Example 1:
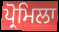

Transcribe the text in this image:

ਪ੍ਰੋਮਿਲਾ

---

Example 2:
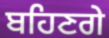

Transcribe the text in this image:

ਬਹਿਣਗੇ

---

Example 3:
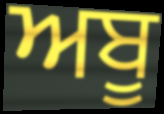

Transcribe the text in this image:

ਅਬੂ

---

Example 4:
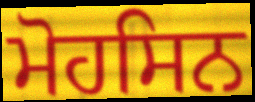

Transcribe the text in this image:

ਮੋਹਸਿਨ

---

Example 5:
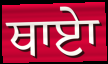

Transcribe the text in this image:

ਥਾਏਾ